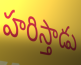
హరిస్తాడు